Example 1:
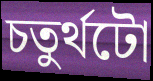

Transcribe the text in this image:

চতুৰ্থটো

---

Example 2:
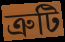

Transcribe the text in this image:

ত্ৰুটি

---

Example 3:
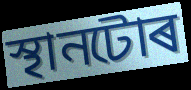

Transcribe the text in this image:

স্থানটোৰ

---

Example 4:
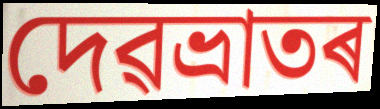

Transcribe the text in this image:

দেৱভ্ৰাতৰ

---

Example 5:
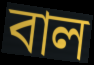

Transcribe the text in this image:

বাল